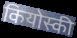
कियोस्की